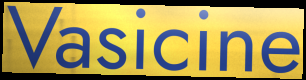
Vasicine